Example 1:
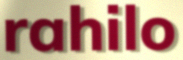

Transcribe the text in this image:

rahilo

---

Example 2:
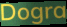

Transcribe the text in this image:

Dogra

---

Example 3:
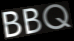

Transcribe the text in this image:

BBQ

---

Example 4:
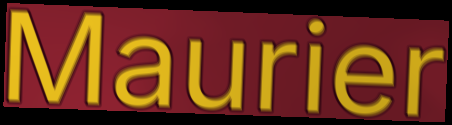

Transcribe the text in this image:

Maurier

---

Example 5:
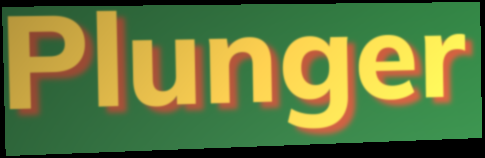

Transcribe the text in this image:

Plunger